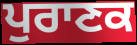
ਪੁਰਾਣਕ